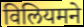
विलियमने